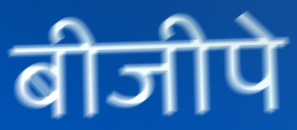
बीजीपे